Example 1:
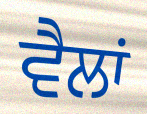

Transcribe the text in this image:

ਵੈਲਾਂ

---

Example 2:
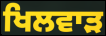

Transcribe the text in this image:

ਖਿਲਵਾੜ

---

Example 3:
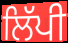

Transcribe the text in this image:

ਲਿੱਪੀ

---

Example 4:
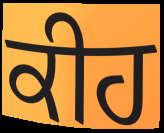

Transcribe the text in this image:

ਕੀਹ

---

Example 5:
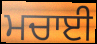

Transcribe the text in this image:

ਮਚਾਈ